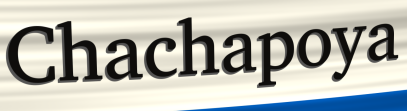
Chachapoya